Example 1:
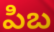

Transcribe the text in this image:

పిబ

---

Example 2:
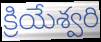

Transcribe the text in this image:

క్రియేశ్వరి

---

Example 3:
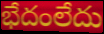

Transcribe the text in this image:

భేదంలేదు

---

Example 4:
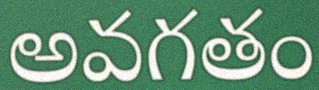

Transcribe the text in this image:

అవగతం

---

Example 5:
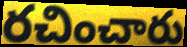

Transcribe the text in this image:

రచించారు